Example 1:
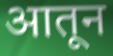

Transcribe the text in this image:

आतून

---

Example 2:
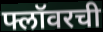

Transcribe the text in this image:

फ्लॉवरची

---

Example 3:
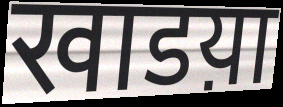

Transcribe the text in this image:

खाडय़ा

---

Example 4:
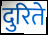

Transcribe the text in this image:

दुरिते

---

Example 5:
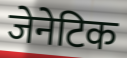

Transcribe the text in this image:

जेनेटिक